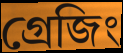
গ্রেজিং